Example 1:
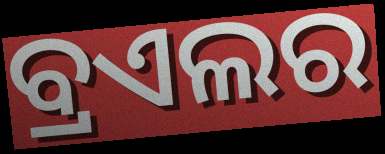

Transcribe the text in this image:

ବ୍ରଏଲର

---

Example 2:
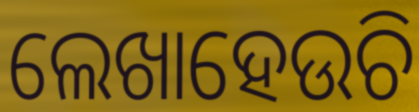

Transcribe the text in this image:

ଲେଖାହେଉଚି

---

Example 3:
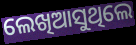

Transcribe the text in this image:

ଲେଖିଆସୁଥିଲେ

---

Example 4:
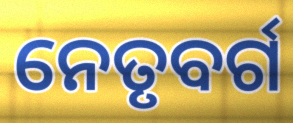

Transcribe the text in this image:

ନେତୃବର୍ଗ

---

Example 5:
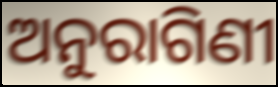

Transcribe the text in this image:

ଅନୁରାଗିଣୀ